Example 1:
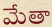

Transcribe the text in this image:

మేతా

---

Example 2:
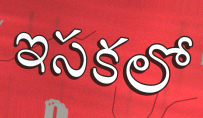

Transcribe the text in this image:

ఇసకలో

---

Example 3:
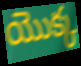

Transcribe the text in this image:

యొక్క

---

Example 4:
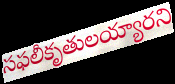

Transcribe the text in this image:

సఫలీకృతులయ్యారని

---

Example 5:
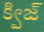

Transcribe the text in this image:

క్విజ్